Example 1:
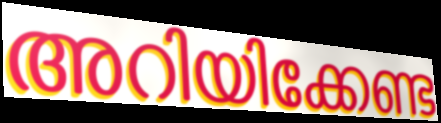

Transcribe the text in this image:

അറിയിക്കേണ്ട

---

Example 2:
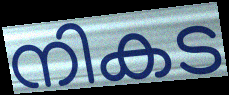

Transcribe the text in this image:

നികട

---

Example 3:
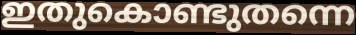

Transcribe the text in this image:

ഇതുകൊണ്ടുതന്നെ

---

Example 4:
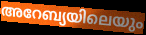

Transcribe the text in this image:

അറേബ്യയിലെയും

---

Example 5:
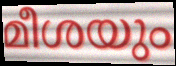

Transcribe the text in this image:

മീശയും